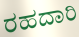
ರಹದಾರಿ